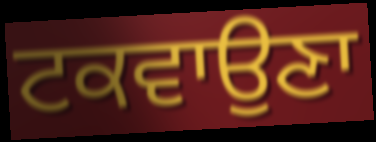
ਟਕਵਾਉਣਾ